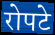
रोपटे